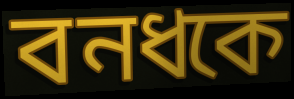
বনধকে